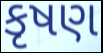
કૃષણ